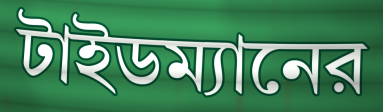
টাইডম্যানের